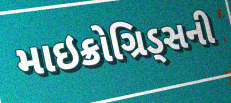
માઇક્રોગ્રિડ્સની